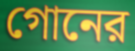
গোনের